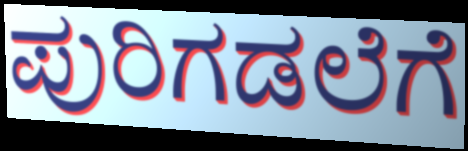
ಪುರಿಗಡಲೆಗೆ